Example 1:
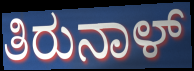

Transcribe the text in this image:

ತಿರುನಾಳ್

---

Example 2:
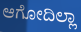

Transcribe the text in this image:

ಆಗೋದಿಲ್ಲಾ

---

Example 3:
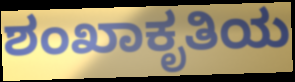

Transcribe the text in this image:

ಶಂಖಾಕೃತಿಯ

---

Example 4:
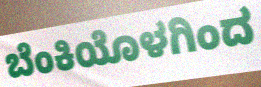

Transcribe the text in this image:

ಬೆಂಕಿಯೊಳಗಿಂದ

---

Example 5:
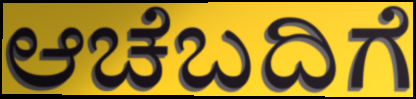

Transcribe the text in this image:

ಆಚೆಬದಿಗೆ